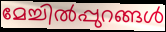
മേച്ചിൽപ്പുറങ്ങൾ